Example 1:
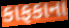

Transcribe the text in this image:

કાફકાના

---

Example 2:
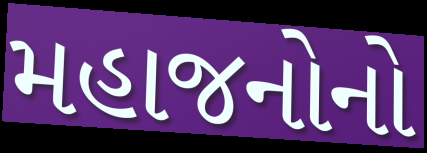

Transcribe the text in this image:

મહાજનોનો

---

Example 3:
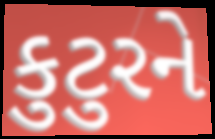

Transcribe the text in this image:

કુટુરને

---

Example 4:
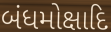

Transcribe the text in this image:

બંધમોક્ષાદિ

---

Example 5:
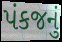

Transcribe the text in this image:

પંકજનું